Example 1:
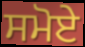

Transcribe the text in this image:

ਸਮੋਏ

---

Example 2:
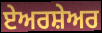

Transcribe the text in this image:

ਏਅਰਸ਼ੇਅਰ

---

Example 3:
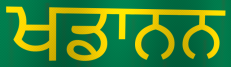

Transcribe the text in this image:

ਖਡਾਨਨ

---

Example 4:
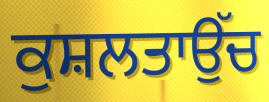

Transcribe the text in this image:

ਕੁਸ਼ਲਤਾਉੱਚ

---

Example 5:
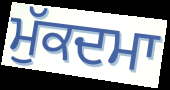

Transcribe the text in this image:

ਮੁੱਕਦਮਾ